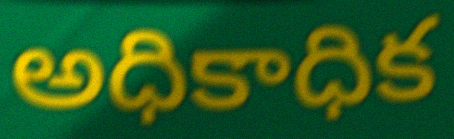
అధికాధిక